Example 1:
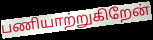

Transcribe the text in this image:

பணியாற்றுகிறேன்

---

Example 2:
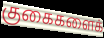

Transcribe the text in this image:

குகைகளைக்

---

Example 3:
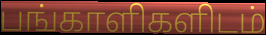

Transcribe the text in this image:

பங்காளிகளிடம்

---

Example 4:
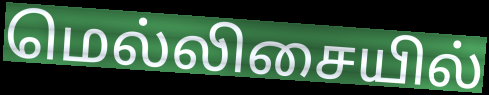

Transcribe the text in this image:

மெல்லிசையில்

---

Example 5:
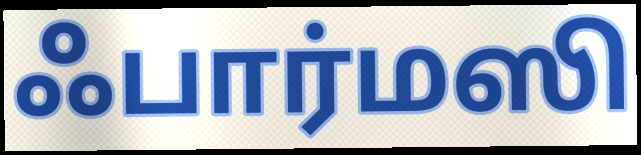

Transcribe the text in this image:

ஃபார்மஸி